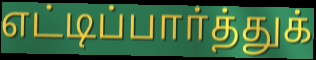
எட்டிப்பார்த்துக்